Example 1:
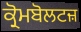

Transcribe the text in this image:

ਕ੍ਰੋਮਬੋਲਟਜ਼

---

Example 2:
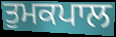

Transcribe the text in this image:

ਤੁਮਕਪਾਲ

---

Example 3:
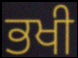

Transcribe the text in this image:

ਭਖੀ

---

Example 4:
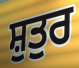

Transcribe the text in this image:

ਸ਼ੁਤੁਰ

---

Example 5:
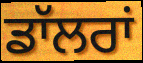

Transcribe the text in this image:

ਡਾੱਲਰਾਂ